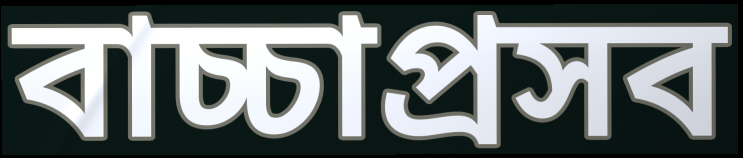
বাচ্চাপ্রসব